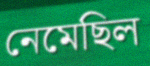
নেমেছিল